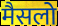
मैसलो